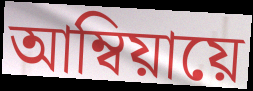
আম্বিয়ায়ে